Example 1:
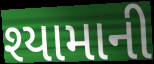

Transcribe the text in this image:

શ્યામાની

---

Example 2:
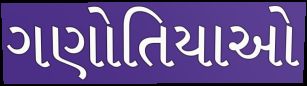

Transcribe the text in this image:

ગણોતિયાઓ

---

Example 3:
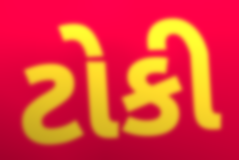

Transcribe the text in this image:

ટોકી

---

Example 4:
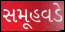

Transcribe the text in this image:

સમૂહવડે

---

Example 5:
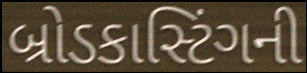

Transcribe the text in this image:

બ્રોડકાસ્ટિંગની